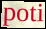
poti